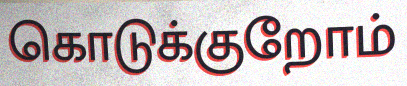
கொடுக்குறோம்